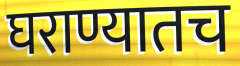
घराण्यातच